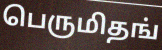
பெருமிதங்